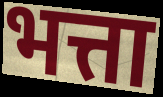
भत्ता